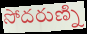
సోదరుణ్ని